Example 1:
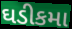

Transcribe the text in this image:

ઘડીકમા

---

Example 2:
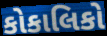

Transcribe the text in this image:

કોકાલિકો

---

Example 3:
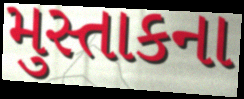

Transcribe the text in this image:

મુસ્તાકના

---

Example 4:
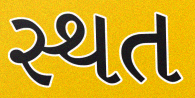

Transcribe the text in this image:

સ્થત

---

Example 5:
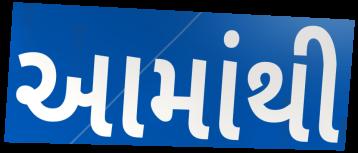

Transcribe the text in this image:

આમાંથી